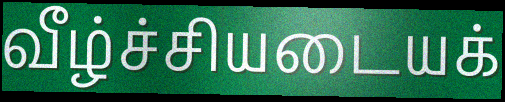
வீழ்ச்சியடையக்